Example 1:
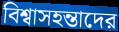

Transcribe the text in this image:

বিশ্বাসহন্তাদের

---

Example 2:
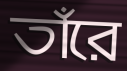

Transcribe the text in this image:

তাঁরে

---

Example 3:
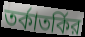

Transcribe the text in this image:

তর্কাতর্কির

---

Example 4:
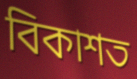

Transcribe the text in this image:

বিকাশত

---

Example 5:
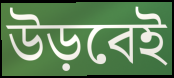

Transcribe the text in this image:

উড়বেই